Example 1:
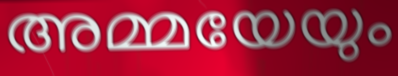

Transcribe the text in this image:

അമ്മയേയും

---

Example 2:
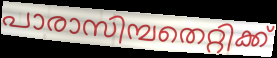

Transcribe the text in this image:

പാരാസിമ്പതെറ്റിക്ക്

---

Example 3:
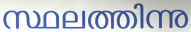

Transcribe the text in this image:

സ്ഥലത്തിന്നു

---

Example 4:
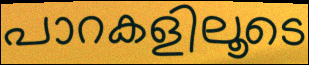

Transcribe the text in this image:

പാറകളിലൂടെ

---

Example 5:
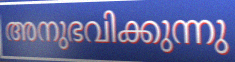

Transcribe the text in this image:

അനുഭവിക്കുന്നു